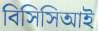
বিসিসিআই